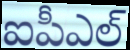
ఐపీఎల్